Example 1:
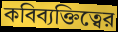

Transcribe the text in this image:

কবিব্যক্তিত্বের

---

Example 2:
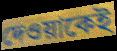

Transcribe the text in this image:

দেওয়াকেই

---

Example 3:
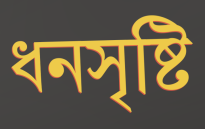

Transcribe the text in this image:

ধনসৃষ্টি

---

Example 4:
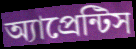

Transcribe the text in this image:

অ্যাপ্রেন্টিস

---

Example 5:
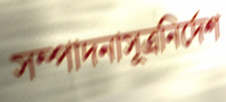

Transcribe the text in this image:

সম্পাদনাসূত্রনির্দেশ